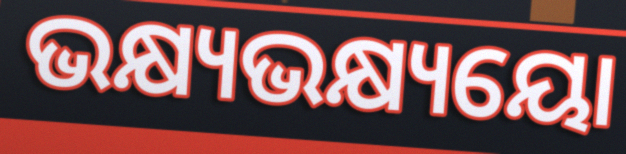
ଭକ୍ଷ୍ୟଭକ୍ଷ୍ୟୟୋ